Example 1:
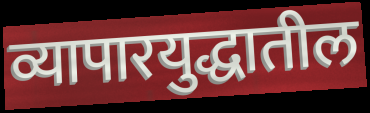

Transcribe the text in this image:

व्यापारयुद्धातील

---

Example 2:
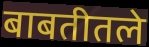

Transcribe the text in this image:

बाबतीतले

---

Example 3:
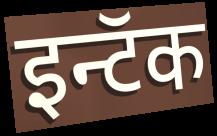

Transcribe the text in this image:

इन्टॅक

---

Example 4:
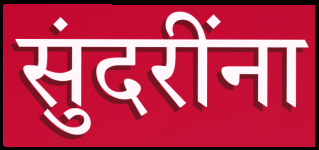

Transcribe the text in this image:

सुंदरींना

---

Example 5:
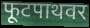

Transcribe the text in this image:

फूटपाथवर